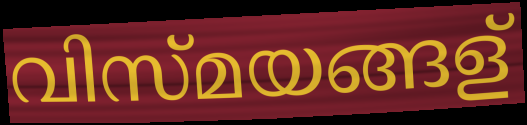
വിസ്മയങ്ങള്